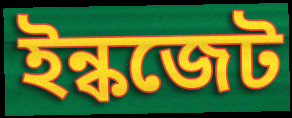
ইন্কজেট